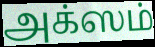
அக்ஸம்